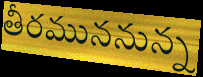
తీరముననున్న